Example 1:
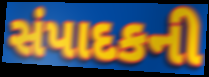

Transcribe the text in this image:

સંપાદકની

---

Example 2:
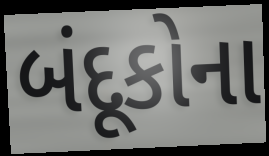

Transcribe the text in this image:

બંદૂકોના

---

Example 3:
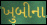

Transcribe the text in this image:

ખુબીના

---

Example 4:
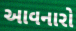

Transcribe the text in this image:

આવનારો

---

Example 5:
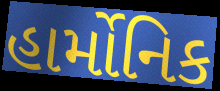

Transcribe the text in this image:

હાર્મોનિક